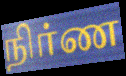
நிர்ண